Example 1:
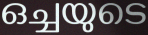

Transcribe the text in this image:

ഒച്ചയുടെ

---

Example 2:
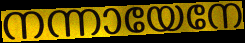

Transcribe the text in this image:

നന്നായേനേ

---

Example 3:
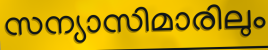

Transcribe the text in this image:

സന്യാസിമാരിലും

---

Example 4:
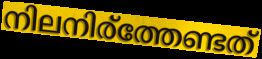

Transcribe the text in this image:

നിലനിര്ത്തേണ്ടത്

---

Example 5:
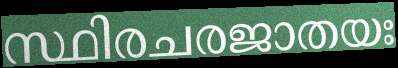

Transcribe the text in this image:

സ്ഥിരചരജാതയഃ